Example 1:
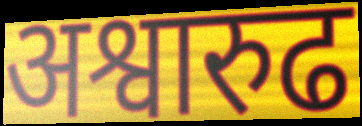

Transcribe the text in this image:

अश्वारुढ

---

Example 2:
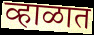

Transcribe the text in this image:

व्हाळात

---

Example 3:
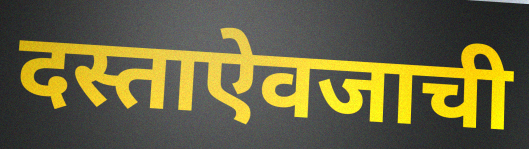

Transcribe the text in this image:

दस्ताऐवजाची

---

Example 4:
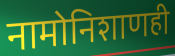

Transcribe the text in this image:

नामोनिशाणही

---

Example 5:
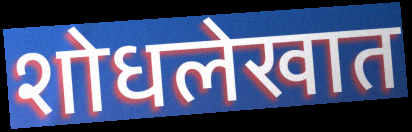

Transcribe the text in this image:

शोधलेखात